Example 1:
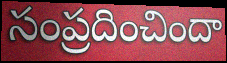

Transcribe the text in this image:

సంప్రదించిందా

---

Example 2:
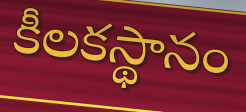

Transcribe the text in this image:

కీలకస్థానం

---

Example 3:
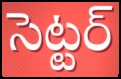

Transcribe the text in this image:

సెట్టర్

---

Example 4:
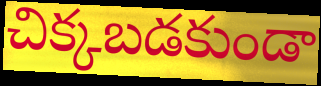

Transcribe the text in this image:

చిక్కబడకుండా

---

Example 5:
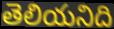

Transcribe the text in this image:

తెలియనిది